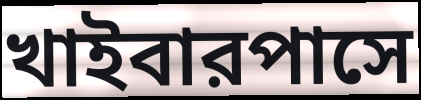
খাইবারপাসে